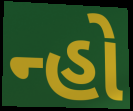
ન્હો